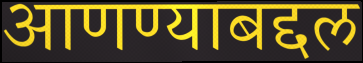
आणण्याबद्दल